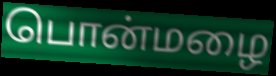
பொன்மழை